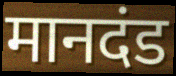
मानदंड